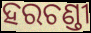
ହରଚଣ୍ଡୀ